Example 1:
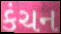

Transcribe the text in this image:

કંચન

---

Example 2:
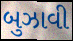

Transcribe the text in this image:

બુઝાવી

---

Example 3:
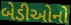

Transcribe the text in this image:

બેડીઓનો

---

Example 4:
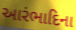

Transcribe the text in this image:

આરંભાદિના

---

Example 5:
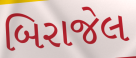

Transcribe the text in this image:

બિરાજેલ